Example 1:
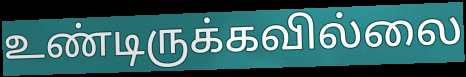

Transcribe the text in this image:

உண்டிருக்கவில்லை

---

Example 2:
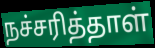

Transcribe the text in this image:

நச்சரித்தாள்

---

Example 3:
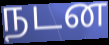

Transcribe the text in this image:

நடன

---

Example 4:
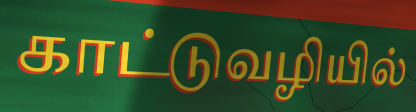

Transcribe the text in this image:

காட்டுவழியில்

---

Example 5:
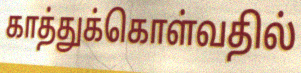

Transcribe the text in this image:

காத்துக்கொள்வதில்